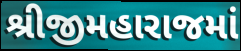
શ્રીજીમહારાજમાં